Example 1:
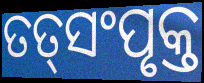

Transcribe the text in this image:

ତତ୍‌ସଂପୃକ୍ତ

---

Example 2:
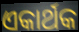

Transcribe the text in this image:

ଏକାର୍ଥକ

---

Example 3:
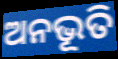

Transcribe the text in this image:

ଅନଭୂତି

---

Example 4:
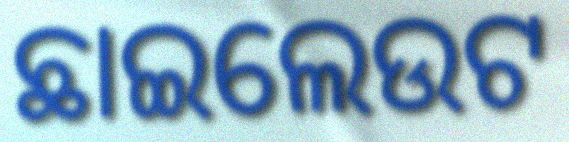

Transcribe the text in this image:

ଛାଇଲେଉଟ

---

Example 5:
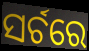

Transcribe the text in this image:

ସର୍ଚରେ